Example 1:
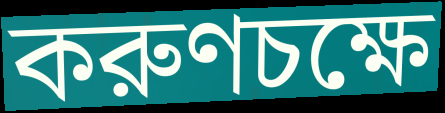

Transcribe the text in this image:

করুণচক্ষে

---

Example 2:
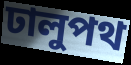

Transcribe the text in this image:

ঢালুপথ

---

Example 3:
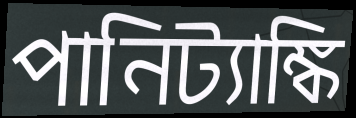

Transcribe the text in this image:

পানিট্যাঙ্কি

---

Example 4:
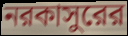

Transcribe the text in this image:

নরকাসুরের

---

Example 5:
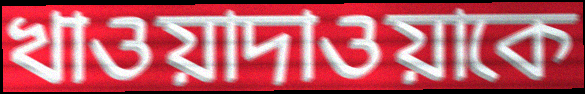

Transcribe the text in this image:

খাওয়াদাওয়াকে